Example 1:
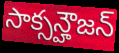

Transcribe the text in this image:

సాక్సన్హౌజన్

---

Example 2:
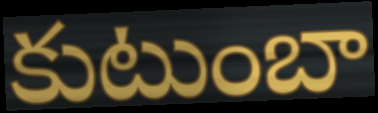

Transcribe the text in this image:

కుటుంబా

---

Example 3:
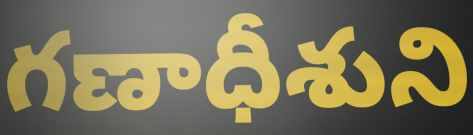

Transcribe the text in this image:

గణాధీశుని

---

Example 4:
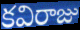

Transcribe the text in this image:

కవిరాజు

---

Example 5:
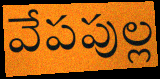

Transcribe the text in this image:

వేపపుల్ల